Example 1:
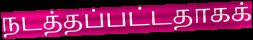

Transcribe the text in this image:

நடத்தப்பட்டதாகக்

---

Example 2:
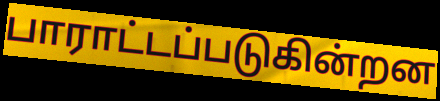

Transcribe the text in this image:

பாராட்டப்படுகின்றன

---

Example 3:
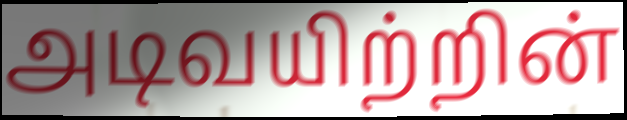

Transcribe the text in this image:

அடிவயிற்றின்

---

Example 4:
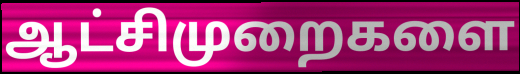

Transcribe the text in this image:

ஆட்சிமுறைகளை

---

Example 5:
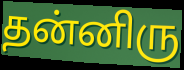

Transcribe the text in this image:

தன்னிரு